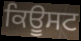
ਕਿਊਸਟ